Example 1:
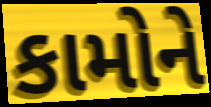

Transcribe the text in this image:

કામોને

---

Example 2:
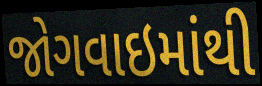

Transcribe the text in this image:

જોગવાઇમાંથી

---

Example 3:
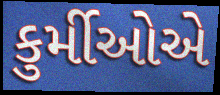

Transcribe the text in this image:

કુર્મીઓએ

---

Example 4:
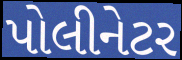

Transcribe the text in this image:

પોલીનેટર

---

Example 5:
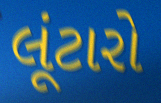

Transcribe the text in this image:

લૂંટારો